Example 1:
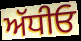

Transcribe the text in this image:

ਅੱਧੀਓ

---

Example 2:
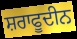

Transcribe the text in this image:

ਸ਼ਰਾਫੂਦੀਨ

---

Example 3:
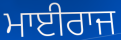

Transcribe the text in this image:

ਮਾਈਰਾਜ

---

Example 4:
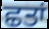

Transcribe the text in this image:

ਛਤਾਂ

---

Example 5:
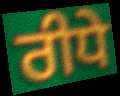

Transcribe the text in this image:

ਰੀਧੇ